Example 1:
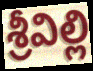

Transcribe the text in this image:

శ్రీవిల్లి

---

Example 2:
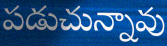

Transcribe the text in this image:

పడుచున్నావు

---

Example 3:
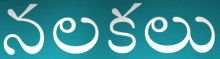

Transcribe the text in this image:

నలకలు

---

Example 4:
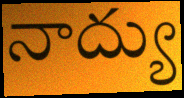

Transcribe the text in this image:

నాద్యు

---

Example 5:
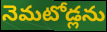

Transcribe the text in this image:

నెమటోడ్లను